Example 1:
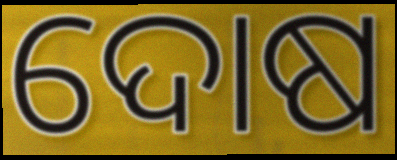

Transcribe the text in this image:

ଦୋଷ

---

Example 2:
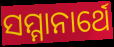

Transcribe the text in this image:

ସମ୍ମାନାର୍ଥେ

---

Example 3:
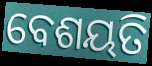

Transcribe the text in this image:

ବେଶୟତି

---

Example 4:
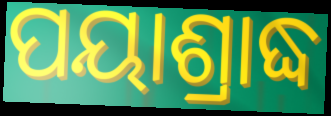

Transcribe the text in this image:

ପୟାଶ୍ରାଦ୍ଧ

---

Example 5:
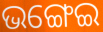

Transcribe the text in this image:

ଭଙ୍ଗେଇ